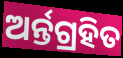
ଅର୍ନ୍ତଗ୍ରହିତ